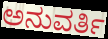
ಅನುವರ್ತಿ